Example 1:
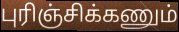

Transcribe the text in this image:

புரிஞ்சிக்கணும்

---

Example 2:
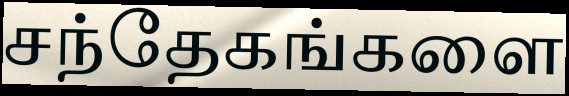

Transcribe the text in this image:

சந்தேகங்களை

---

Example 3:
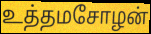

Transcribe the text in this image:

உத்தமசோழன்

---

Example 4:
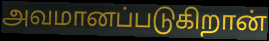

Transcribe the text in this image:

அவமானப்படுகிறான்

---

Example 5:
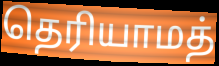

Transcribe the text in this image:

தெரியாமத்